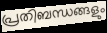
പ്രതിബന്ധങ്ങളും